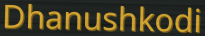
Dhanushkodi